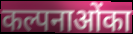
कल्पनाओंका